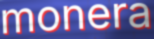
monera